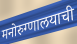
मनोरुग्णालयाची